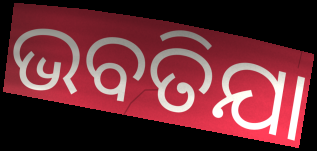
ଭବତିଯା